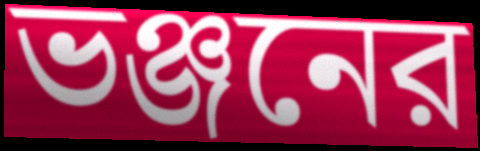
ভঞ্জনের